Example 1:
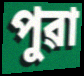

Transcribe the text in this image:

পুৱা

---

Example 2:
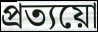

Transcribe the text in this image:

প্ৰত্যয়ো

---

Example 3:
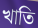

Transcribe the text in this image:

খাতি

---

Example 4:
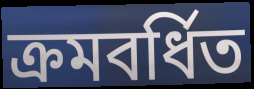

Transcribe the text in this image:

ক্ৰমবৰ্ধিত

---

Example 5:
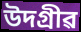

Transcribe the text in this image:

উদগ্ৰীৱ